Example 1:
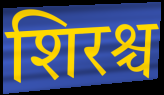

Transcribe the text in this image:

शिरश्च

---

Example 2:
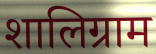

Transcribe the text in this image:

शालिग्राम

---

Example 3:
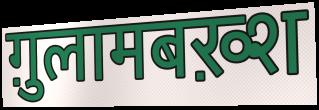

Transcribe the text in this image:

ग़ुलामबख़्श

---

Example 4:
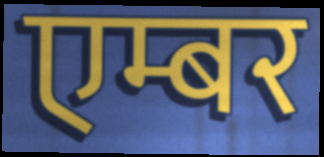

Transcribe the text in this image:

एम्बर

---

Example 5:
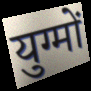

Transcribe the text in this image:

युग्मों